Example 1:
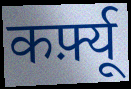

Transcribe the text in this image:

कर्फ़्यू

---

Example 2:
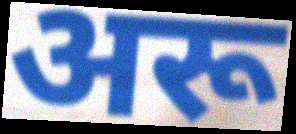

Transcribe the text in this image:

अरू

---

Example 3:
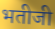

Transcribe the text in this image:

भतीजी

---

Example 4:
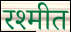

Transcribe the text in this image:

रश्मीत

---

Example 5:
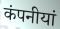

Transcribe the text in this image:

कंपनीयां